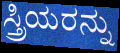
ಸ್ತ್ರಿಯರನ್ನು